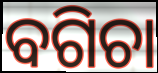
ବଗିଚା